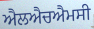
ਐਲਐਚਐਮਸੀ